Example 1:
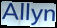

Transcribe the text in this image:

Allyn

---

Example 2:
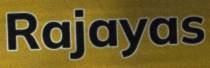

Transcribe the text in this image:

Rajayas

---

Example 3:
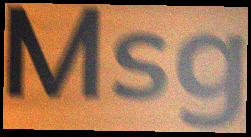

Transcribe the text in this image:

Msg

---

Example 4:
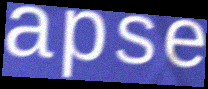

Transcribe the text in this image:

apse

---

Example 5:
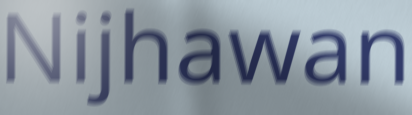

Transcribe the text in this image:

Nijhawan